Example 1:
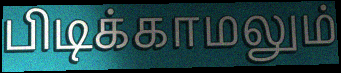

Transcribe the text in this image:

பிடிக்காமலும்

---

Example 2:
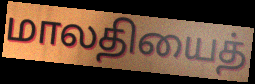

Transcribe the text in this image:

மாலதியைத்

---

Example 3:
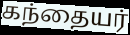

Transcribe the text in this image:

கந்தையர்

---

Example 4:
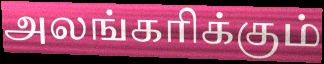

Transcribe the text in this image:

அலங்கரிக்கும்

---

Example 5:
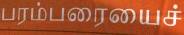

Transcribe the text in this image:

பரம்பரையைச்